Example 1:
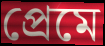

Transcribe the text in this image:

প্রেমে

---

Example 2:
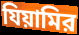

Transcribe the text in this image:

যিয়ামির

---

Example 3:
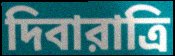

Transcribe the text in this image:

দিবারাত্রি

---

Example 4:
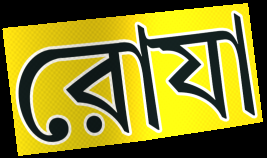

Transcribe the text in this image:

রোযা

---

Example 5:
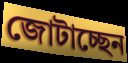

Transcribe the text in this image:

জোটাচ্ছেন